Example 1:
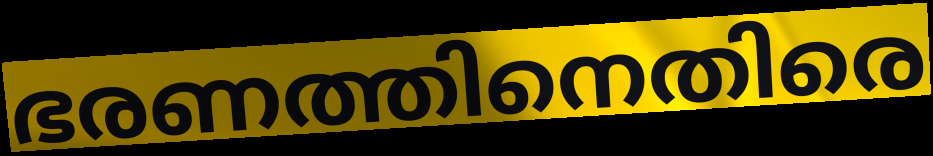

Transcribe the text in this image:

ഭരണത്തിനെതിരെ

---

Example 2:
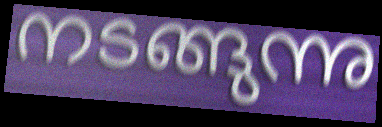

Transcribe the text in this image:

നടങ്ങുന്നു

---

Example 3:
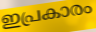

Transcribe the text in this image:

ഇപ്രകാരം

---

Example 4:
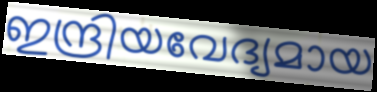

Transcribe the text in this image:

ഇന്ദ്രിയവേദ്യമായ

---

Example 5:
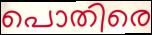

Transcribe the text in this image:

പൊതിരെ